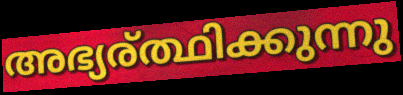
അഭ്യര്ത്ഥിക്കുന്നു